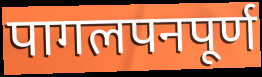
पागलपनपूर्ण